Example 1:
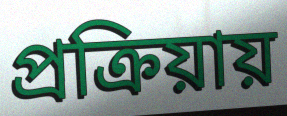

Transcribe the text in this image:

প্রক্রিয়ায়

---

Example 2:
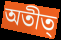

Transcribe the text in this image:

অতীত্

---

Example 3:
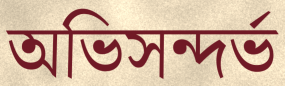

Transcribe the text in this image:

অভিসন্দর্ভ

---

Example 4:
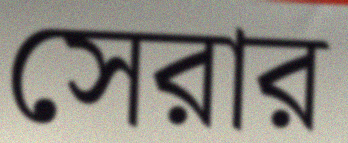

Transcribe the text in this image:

সেরার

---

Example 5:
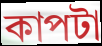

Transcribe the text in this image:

কাপটা